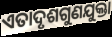
ଏତାଦୃଶଗୁଣଯୁକ୍ତା